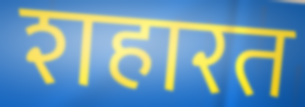
शहारत